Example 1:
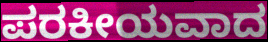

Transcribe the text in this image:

ಪರಕೀಯವಾದ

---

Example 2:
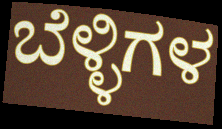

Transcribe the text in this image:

ಬೆಳ್ಳಿಗಳ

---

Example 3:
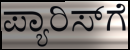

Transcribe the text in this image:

ಪ್ಯಾರಿಸ್‍ಗೆ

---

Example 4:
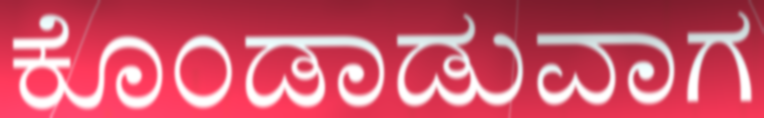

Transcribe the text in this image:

ಕೊಂಡಾಡುವಾಗ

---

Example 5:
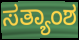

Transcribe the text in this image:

ಸತ್ಯಾಂಶ